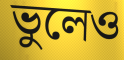
ভুলেও